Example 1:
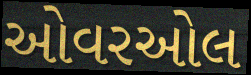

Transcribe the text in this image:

ઓવરઓલ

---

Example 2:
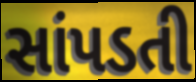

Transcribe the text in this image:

સાંપડતી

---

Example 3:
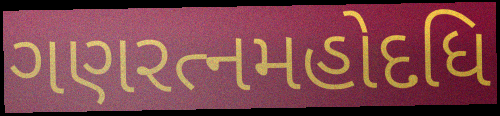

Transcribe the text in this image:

ગણરત્નમહોદધિ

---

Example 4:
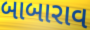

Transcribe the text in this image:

બાબારાવ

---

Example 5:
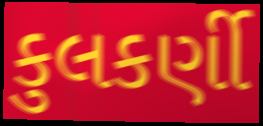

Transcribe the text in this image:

કુલકર્ણી